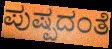
ಪುಷ್ಪದಂತೆ